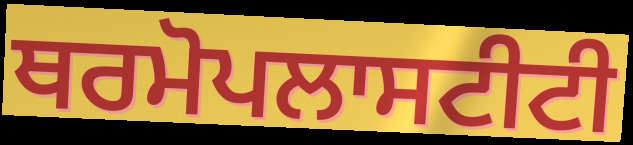
ਥਰਮੋਪਲਾਸਟੀਟੀ